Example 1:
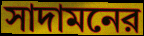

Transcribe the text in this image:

সাদামনের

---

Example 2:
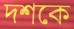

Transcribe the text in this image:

দশকে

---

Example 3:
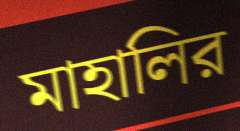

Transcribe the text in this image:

মাহালির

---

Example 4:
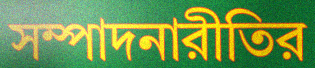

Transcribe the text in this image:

সম্পাদনারীতির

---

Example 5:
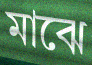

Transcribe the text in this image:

মাঝে